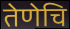
तेणेचि